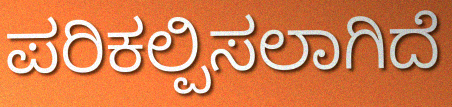
ಪರಿಕಲ್ಪಿಸಲಾಗಿದೆ